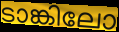
ടാങ്കിലോ